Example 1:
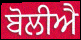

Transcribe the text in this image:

ਬੋਲੀਐ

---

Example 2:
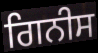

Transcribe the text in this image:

ਗਿਨੀਸ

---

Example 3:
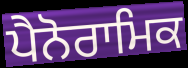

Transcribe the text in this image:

ਪੈਨੋਰਾਮਿਕ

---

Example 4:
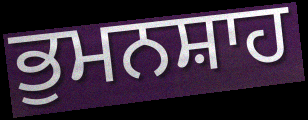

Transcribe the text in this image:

ਭੁਮਨਸ਼ਾਹ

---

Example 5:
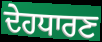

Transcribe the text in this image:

ਦੇਹਧਾਰਣ